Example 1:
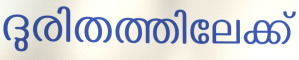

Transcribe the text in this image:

ദുരിതത്തിലേക്ക്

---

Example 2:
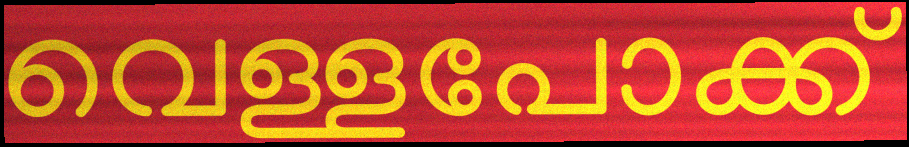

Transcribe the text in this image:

വെള്ളപോക്ക്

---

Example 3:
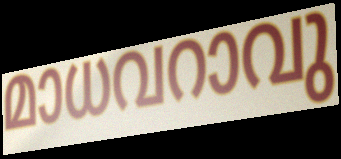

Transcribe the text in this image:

മാധവറാവു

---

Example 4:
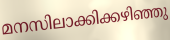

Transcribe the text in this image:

മനസിലാക്കിക്കഴിഞ്ഞു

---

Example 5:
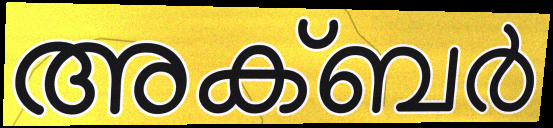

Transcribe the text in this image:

അക്ബർ